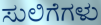
ಸುಲಿಗೆಗಳು